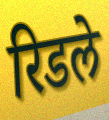
रिडले